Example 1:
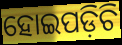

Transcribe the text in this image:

ହୋଇପଡ଼ିଚି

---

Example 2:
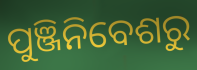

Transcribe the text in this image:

ପୁଞ୍ଜିନିବେଶରୁ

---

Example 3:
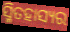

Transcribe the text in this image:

ସ୍ମିତହାସ୍ୟର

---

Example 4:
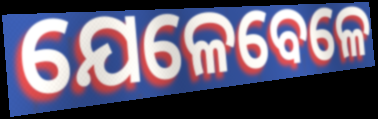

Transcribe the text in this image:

ଯେଳେବେଳେ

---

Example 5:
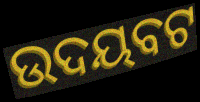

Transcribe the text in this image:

ଉଦୟବଟ